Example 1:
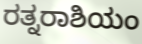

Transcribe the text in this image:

ರತ್ನರಾಶಿಯಂ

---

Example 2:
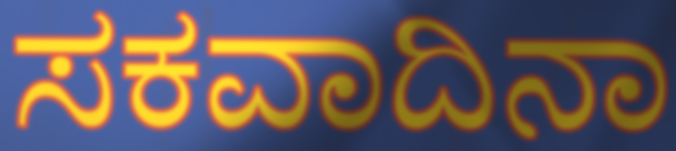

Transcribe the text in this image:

ಸಕವಾದಿನಾ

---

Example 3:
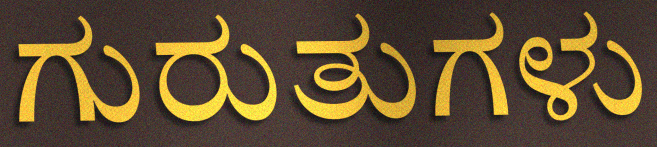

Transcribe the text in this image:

ಗುರುತುಗಳು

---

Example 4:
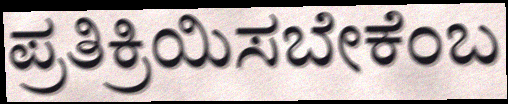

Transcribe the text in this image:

ಪ್ರತಿಕ್ರಿಯಿಸಬೇಕೆಂಬ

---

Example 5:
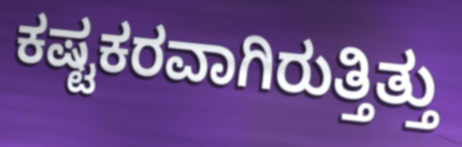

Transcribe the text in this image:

ಕಷ್ಟಕರವಾಗಿರುತ್ತಿತ್ತು